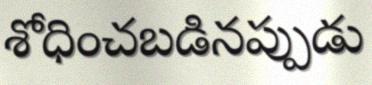
శోధించబడినప్పుడు